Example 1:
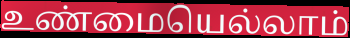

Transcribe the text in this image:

உண்மையெல்லாம்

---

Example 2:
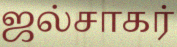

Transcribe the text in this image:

ஜல்சாகர்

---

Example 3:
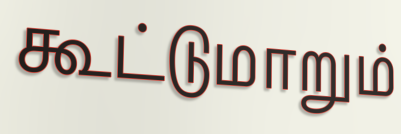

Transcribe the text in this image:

கூட்டுமாறும்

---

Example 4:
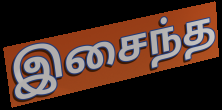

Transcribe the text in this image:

இசைந்த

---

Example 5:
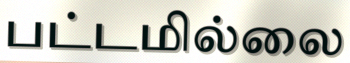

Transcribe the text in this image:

பட்டமில்லை